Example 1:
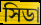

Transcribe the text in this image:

সিডা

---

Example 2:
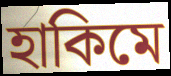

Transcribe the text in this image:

হাকিমে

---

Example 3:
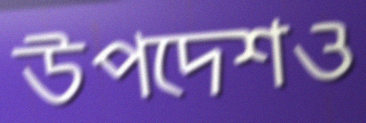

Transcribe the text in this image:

উপদেশও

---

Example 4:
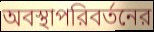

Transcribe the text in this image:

অবস্থাপরিবর্তনের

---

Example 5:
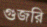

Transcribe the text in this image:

গুজরি